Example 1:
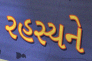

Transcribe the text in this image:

રહસ્યને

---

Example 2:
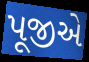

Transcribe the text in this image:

પૂજીએ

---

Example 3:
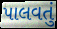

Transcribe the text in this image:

પાલવતું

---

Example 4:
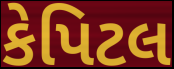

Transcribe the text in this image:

કેપિટલ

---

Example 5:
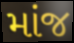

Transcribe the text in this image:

માંજ